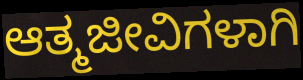
ಆತ್ಮಜೀವಿಗಳಾಗಿ